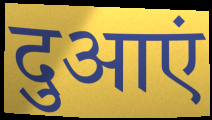
दुआएं